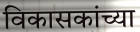
विकासकांच्या